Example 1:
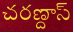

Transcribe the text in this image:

చరణ్దాస్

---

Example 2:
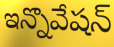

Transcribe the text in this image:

ఇన్నొవేషన్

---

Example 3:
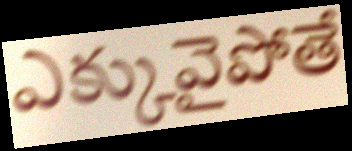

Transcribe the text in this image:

ఎక్కువైపోతే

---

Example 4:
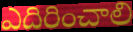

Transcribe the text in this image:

ఎదిరించాలి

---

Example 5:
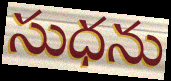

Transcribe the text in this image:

సుధను